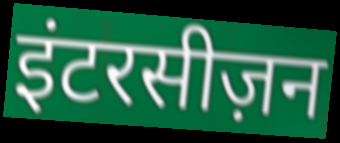
इंटरसीज़न